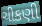
ચીકણી